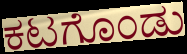
ಕಟಗೊಂಡು